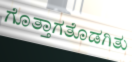
ಗೊತ್ತಾಗತೊಡಗಿತು